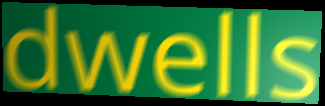
dwells